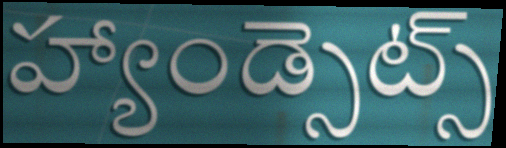
హ్యాండ్సెట్స్